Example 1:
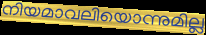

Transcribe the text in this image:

നിയമാവലിയൊന്നുമില്ല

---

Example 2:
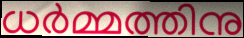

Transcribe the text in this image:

ധർമ്മത്തിനു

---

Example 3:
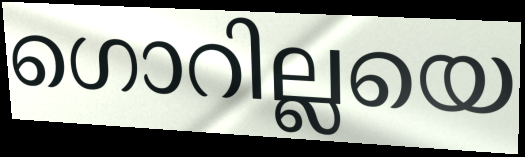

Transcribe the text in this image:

ഗൊറില്ലയെ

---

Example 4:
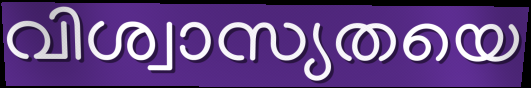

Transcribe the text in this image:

വിശ്വാസ്യതയെ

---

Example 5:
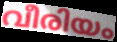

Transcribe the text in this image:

വീരിയം